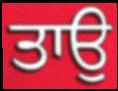
ਤਾਉ